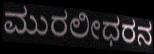
ಮುರಲೀಧರನ